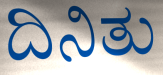
ದಿನಿತು